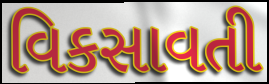
વિકસાવતી